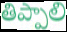
తిప్పాలి